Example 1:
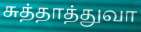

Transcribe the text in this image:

சுத்தாத்துவா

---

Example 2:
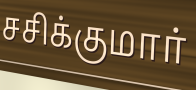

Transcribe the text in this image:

சசிக்குமார்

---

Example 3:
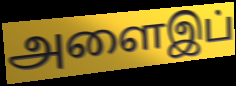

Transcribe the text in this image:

அளைஇப்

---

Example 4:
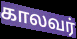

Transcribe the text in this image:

காலவர்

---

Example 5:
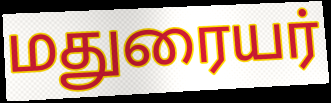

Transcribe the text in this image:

மதுரையர்